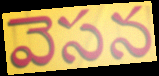
వెసన